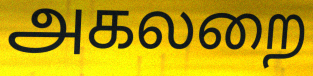
அகலறை